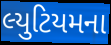
લ્યુટિયમના